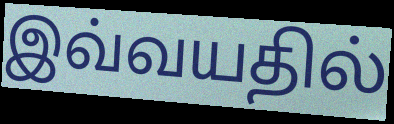
இவ்வயதில்